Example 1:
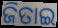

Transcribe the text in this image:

ଜିତାଇ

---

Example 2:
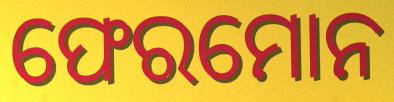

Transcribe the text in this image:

ଫେରମୋନ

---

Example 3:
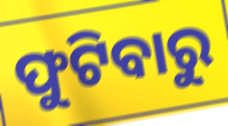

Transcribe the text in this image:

ଫୁଟିବାରୁ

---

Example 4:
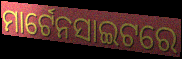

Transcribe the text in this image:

ମାର୍ଟେନସାଇଟରେ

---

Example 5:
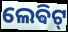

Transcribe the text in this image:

ଲେଵିଟ୍